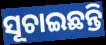
ସୂଚାଇଛନ୍ତି